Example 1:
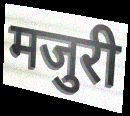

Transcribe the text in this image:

मजुरी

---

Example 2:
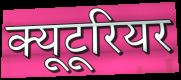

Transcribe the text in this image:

क्यूटूरियर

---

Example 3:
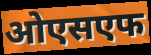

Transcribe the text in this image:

ओएसएफ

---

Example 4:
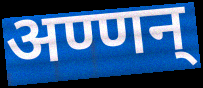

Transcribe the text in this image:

अण्णन्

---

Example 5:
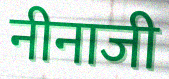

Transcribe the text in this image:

नीनाजी